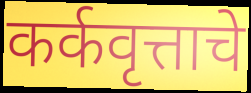
कर्कवृत्ताचे